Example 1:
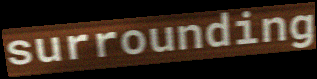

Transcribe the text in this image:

surrounding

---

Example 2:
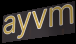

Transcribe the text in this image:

ayvm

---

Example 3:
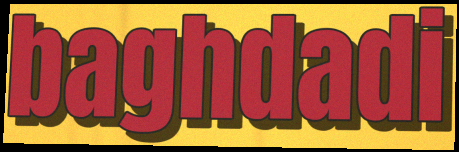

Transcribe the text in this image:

baghdadi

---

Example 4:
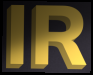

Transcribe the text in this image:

IR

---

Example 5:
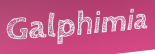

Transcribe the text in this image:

Galphimia